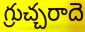
గ్రుచ్చరాదె